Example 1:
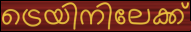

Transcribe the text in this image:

ട്രെയിനിലേക്ക്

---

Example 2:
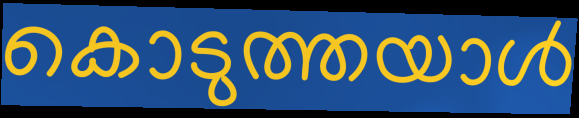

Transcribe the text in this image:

കൊടുത്തയാൾ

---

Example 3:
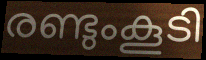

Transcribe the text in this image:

രണ്ടുംകൂടി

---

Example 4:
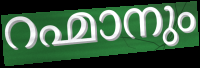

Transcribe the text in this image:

റഹ്മാനും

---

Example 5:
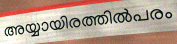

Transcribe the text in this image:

അയ്യായിരത്തിൽപരം